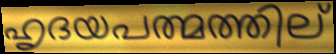
ഹൃദയപത്മത്തില്